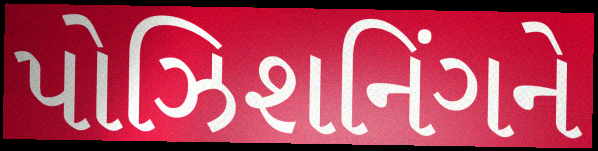
પોઝિશનિંગને